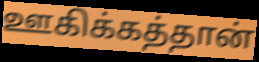
ஊகிக்கத்தான்